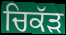
ਚਿਕੱੜ